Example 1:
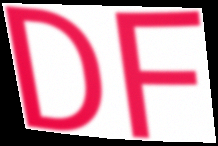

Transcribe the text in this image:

DF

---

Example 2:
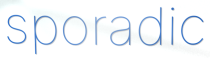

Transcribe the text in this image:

sporadic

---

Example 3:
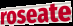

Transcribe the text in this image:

roseate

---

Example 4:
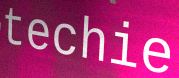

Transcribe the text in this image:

techie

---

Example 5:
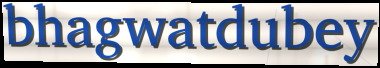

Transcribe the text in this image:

bhagwatdubey